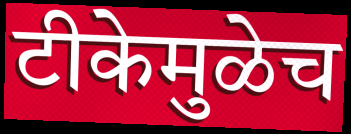
टीकेमुळेच